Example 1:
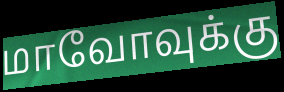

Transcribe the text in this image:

மாவோவுக்கு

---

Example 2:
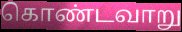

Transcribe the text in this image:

கொண்டவாறு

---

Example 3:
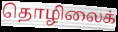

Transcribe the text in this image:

தொழிலைக்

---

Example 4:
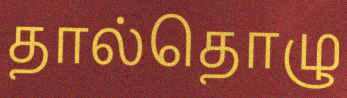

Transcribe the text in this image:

தால்தொழு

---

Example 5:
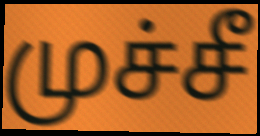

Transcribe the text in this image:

முச்சீ